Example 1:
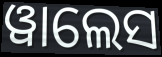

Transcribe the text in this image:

ୱାଲେସ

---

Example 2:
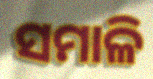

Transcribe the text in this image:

ସମାଳି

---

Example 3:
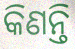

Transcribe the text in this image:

କିଣନ୍ତି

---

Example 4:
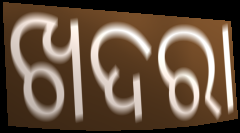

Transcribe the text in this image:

ଖଦରା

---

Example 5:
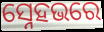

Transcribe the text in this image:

ସ୍ନେହଭରେ